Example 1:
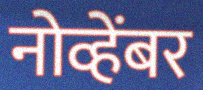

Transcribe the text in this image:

नोव्हेंबर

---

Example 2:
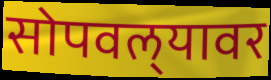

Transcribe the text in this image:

सोपवल्यावर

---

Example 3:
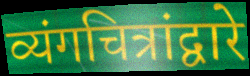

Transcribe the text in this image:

व्यंगचित्रांद्वारे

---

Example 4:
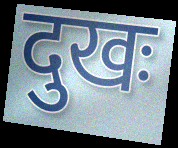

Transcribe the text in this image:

दुखः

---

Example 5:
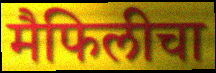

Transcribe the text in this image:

मैफिलीचा